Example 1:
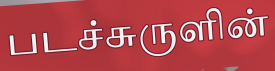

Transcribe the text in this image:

படச்சுருளின்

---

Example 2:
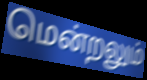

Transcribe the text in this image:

மென்றலும்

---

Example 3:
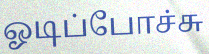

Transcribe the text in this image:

ஓடிப்போச்சு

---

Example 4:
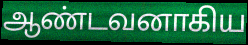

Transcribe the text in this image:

ஆண்டவனாகிய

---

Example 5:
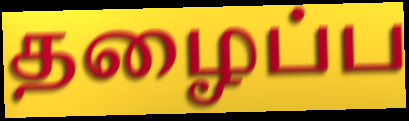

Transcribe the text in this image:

தழைப்ப